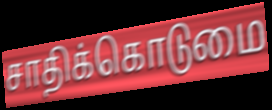
சாதிக்கொடுமை